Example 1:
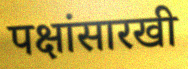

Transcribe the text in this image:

पक्षांसारखी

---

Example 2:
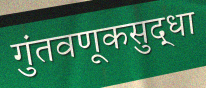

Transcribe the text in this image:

गुंतवणूकसुद्धा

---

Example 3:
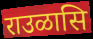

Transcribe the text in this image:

राउळासि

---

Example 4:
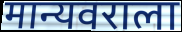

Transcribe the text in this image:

मान्यवराला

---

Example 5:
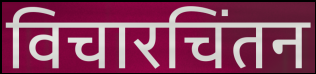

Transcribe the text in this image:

विचारचिंतन